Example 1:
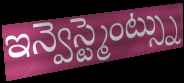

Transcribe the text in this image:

ఇన్వెస్ట్మెంట్స్ను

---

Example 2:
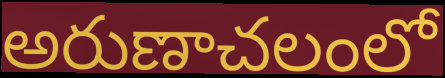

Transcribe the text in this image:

అరుణాచలంలో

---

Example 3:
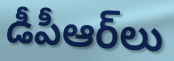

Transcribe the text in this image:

డీపీఆర్‌లు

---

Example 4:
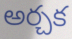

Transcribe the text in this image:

అర్చక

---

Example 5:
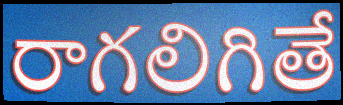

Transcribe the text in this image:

రాగలిగితే